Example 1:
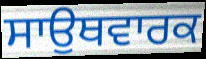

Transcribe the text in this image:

ਸਾਉਥਵਾਰਕ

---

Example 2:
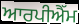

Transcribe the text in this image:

ਆਰਪੀਐੱਮ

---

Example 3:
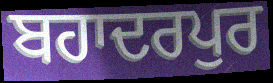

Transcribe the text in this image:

ਬਹਾਦਰਪੁਰ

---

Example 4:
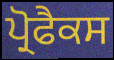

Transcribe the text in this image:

ਪ੍ਰੋਫੈਕਸ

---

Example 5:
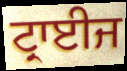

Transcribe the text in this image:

ਟ੍ਰਾਈਜ